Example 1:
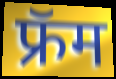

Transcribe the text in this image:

फ्रॅम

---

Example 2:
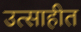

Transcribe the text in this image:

उत्साहीत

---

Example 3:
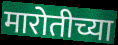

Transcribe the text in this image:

मारोतीच्या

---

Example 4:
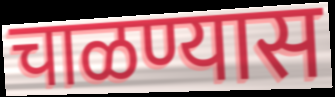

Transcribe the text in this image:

चाळण्यास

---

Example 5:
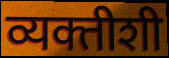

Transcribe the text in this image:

व्यक्‍तीशी